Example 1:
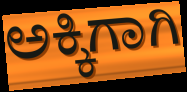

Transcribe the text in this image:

ಅಕ್ಕಿಗಾಗಿ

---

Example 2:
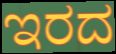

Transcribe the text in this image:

ಇರದ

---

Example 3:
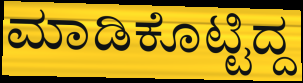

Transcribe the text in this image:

ಮಾಡಿಕೊಟ್ಟಿದ್ದ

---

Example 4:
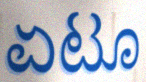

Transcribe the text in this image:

ಏಟೂ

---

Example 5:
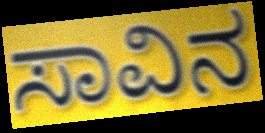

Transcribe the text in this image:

ಸಾವಿನ